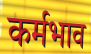
कर्मभाव